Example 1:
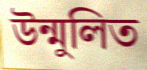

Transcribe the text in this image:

উন্মুলিত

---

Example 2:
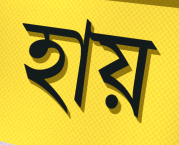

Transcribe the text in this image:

হায়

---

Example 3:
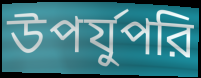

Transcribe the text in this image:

উপর্যুপরি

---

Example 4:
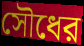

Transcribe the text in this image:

সৌধের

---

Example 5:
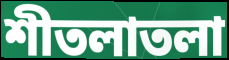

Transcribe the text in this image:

শীতলাতলা